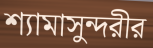
শ্যামাসুন্দরীর